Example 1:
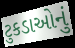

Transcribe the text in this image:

ટુકડાઓનું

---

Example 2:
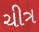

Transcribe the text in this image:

ચીત્ર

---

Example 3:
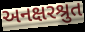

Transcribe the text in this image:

અનક્ષરશ્રુત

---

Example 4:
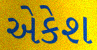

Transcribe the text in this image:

એકેશ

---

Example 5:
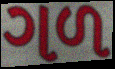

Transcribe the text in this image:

ગળ